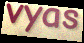
vyas